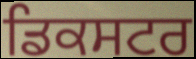
ਡਿਕਸਟਰ